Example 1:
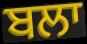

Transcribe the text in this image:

ਬਲਾ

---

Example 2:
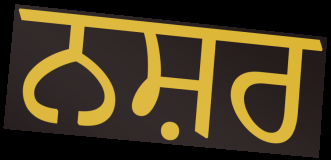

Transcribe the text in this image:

ਨਸ਼ਰ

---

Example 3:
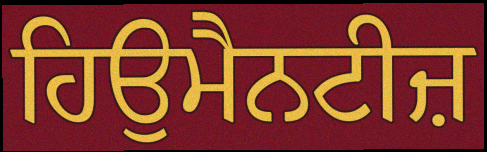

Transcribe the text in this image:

ਹਿਉਮੈਨਟੀਜ਼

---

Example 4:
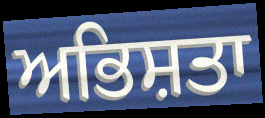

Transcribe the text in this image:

ਅਭਿਸ਼ਤਾ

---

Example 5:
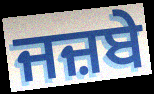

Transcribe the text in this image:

ਜਜ਼ਬੇ